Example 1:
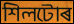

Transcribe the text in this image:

শিলটোৰ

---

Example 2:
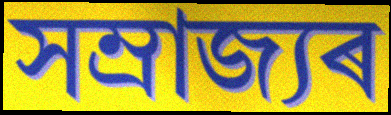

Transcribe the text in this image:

সম্ৰাজ্যৰ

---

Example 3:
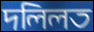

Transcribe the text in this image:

দলিলত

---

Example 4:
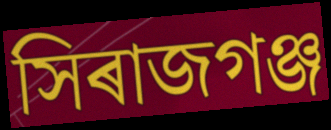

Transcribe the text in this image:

সিৰাজগঞ্জ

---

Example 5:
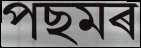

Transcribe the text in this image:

পছমৰ